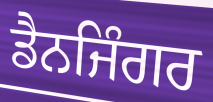
ਡੈਨਜਿੰਗਰ